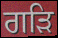
ਗੜਿ